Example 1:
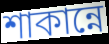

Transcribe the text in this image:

শাকান্নে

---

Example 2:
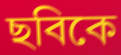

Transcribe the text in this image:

ছবিকে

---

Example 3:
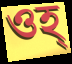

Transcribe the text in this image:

ওহ্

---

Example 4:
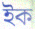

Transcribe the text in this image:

ইক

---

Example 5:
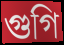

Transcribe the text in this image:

গুগি